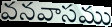
వనవాసము